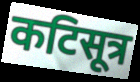
कटिसूत्र